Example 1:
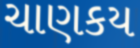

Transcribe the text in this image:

ચાણકય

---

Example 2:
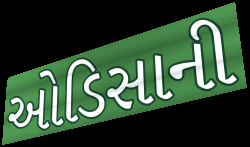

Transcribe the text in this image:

ઓડિસાની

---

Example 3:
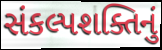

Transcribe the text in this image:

સંકલ્પશક્તિનું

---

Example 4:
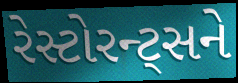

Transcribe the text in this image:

રેસ્ટોરન્ટ્સને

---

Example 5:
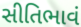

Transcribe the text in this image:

સીતિભાવં